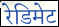
रेडिमेट